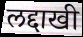
लद्दाखी